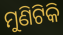
ମୁଣିଟିକି